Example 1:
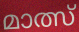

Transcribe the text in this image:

മാത്സ്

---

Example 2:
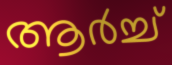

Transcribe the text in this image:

ആർച്ച്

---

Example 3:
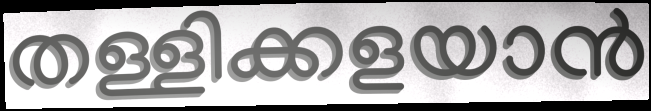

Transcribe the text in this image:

തള്ളിക്കളയാൻ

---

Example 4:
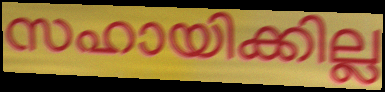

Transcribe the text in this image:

സഹായിക്കില്ല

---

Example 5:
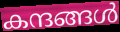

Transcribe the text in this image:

കന്ദങ്ങൾ